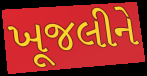
ખૂજલીને